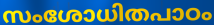
സംശോധിതപാഠം